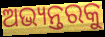
ଅଭ୍ୟନ୍ତରକୁ